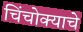
चिंचोक्याचे